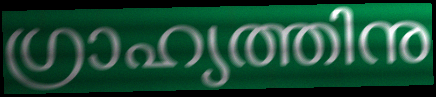
ഗ്രാഹ്യത്തിനു